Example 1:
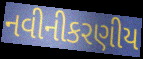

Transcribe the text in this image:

નવીનીકરણીય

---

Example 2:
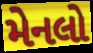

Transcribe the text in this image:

મેનલો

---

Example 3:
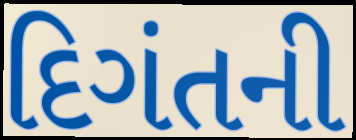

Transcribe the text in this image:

દિગંતની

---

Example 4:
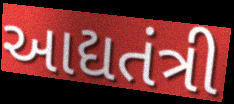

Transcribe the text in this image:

આદ્યતંત્રી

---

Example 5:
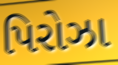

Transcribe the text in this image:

પિરોઝા